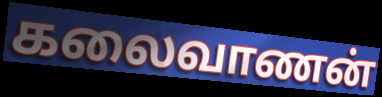
கலைவாணன்